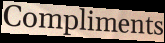
Compliments